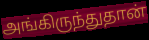
அங்கிருந்துதான்